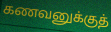
கணவனுக்குத்